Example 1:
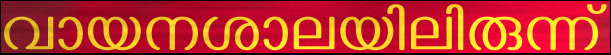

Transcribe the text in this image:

വായനശാലയിലിരുന്ന്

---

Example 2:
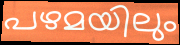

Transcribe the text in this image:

പഴമയിലും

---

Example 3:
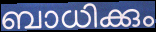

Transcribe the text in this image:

ബാധിക്കും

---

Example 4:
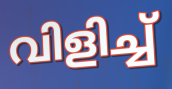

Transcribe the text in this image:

വിളിച്ച്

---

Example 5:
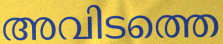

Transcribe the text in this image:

അവിടത്തെ